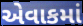
એવાકમાં